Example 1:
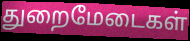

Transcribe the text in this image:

துறைமேடைகள்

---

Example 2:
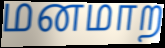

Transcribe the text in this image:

மனமாற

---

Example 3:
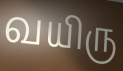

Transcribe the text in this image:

வயிரு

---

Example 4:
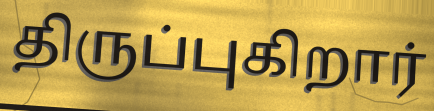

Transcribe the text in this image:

திருப்புகிறார்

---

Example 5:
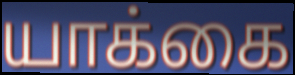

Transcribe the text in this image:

யாக்கை